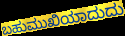
ಬಹುಮುಖಿಯಾದುದು